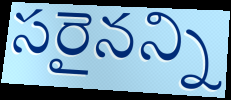
సరైనన్ని